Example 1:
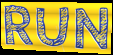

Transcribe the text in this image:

RUN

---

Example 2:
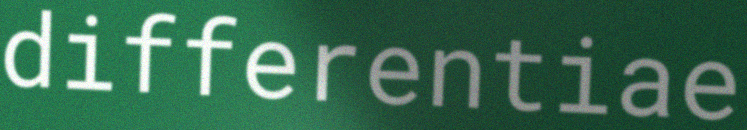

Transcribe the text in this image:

differentiae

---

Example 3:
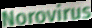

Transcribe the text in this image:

Norovirus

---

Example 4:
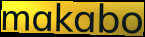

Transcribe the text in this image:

makabo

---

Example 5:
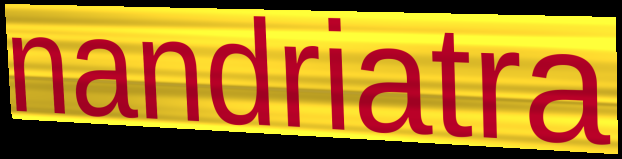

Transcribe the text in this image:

nandriatra